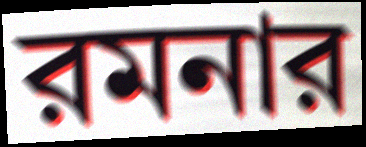
রমনার